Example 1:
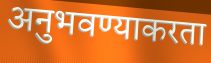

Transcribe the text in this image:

अनुभवण्याकरता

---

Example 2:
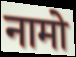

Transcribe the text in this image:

नामो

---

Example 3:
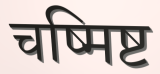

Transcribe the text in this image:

चष्मिष्ट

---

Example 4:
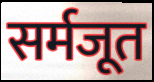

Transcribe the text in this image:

सर्मजूत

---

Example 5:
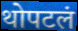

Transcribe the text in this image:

थोपटलं